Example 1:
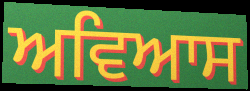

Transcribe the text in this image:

ਅਵਿਆਸ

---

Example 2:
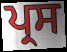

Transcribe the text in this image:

ਪ੍ਰਸ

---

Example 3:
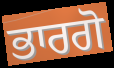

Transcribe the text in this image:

ਭਾਰਗੋ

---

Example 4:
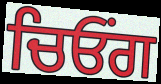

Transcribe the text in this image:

ਚਿਓਂਗ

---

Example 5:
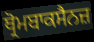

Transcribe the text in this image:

ਥ੍ਰੋਮਬਾਕਸੈਨਜ਼